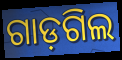
ଗାଡ଼ଗିଲ